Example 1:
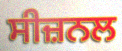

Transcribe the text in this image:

ਸੀਜ਼ਨਲ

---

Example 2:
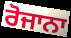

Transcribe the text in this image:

ਰੋਜਾਨਾ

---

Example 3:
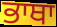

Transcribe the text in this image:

ਭਾਥਾ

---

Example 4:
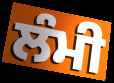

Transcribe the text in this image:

ਲੰਮੀ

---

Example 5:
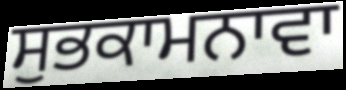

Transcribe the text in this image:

ਸੁਭਕਾਮਨਾਵਾ